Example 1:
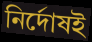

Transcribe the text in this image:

নির্দোষই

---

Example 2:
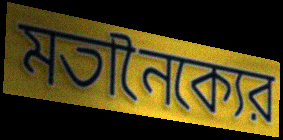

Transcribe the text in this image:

মতানৈক্যের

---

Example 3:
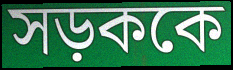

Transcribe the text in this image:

সড়ককে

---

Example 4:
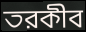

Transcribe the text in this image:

তরকীব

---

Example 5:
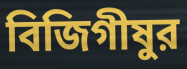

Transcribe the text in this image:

বিজিগীষুর